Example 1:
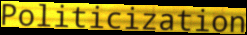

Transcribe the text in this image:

Politicization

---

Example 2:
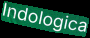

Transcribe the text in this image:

Indologica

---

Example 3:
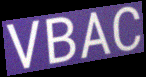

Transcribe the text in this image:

VBAC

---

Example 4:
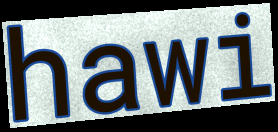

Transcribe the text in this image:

hawi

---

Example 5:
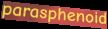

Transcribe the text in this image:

parasphenoid